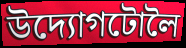
উদ্যোগটোলৈ